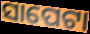
ସାପେଟା